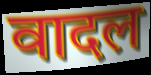
वादल